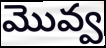
మొవ్వ